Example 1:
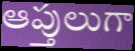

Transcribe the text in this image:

ఆప్తులుగా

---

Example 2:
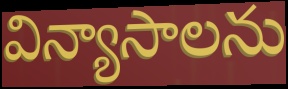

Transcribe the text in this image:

విన్యాసాలను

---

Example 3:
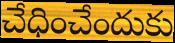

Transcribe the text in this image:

చేధించేందుకు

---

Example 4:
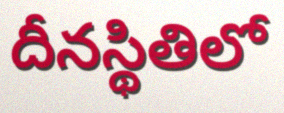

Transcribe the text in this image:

దీనస్థితిలో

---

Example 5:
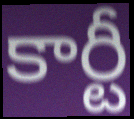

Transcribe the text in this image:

కార్టీ